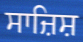
ਸਾਜ਼ਿਸ਼